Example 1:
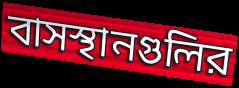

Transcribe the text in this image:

বাসস্থানগুলির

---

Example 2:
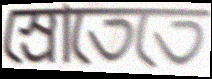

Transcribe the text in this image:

স্রোতেতে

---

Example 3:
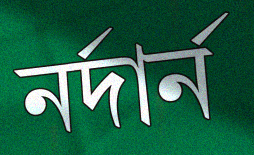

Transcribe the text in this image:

নর্দার্ন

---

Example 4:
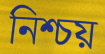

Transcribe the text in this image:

নিশ্চয়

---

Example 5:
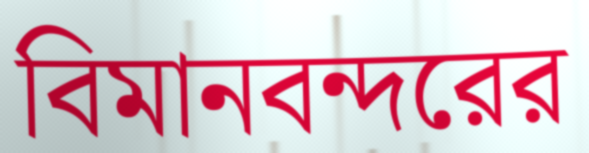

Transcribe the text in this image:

বিমানবন্দরের